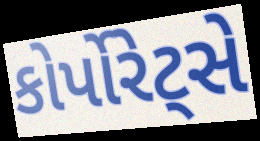
કોર્પોરેટ્સે